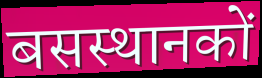
बसस्थानकों